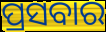
ପ୍ରସବାର